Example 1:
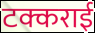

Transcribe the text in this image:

टक्कराई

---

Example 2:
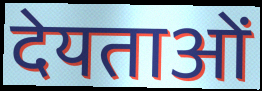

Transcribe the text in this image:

देयताओं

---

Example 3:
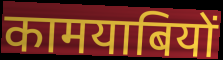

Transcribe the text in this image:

कामयाबियों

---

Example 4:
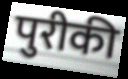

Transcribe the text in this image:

पुरीकी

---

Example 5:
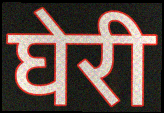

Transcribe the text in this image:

घेरी